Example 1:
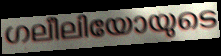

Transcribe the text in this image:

ഗലീലിയോയുടെ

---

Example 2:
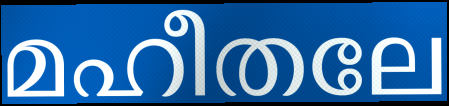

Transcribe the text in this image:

മഹീതലേ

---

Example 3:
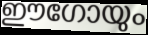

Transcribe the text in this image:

ഈഗോയും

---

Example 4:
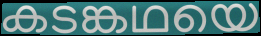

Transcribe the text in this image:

കടങ്കഥയെ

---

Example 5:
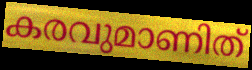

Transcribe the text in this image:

കരവുമാണിത്